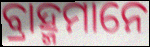
ବ୍ରାହ୍ମମାନେ